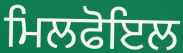
ਮਿਲਫੋਇਲ